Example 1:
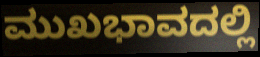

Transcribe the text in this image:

ಮುಖಭಾವದಲ್ಲಿ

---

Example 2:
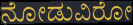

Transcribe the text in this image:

ನೋಡುವಿರೋ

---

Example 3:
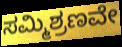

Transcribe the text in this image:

ಸಮ್ಮಿಶ್ರಣವೇ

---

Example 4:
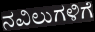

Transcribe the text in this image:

ನವಿಲುಗಳಿಗೆ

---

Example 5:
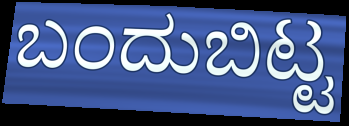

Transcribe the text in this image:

ಬಂದುಬಿಟ್ಟ